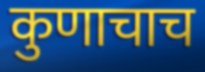
कुणाचाच